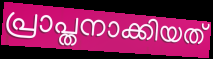
പ്രാപ്തനാക്കിയത്